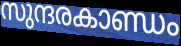
സുന്ദരകാണ്ഡം